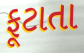
ફૂટાતા